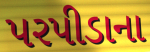
પરપીડાના